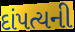
દાંપત્યની